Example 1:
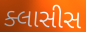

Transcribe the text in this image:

ક્લાસીસ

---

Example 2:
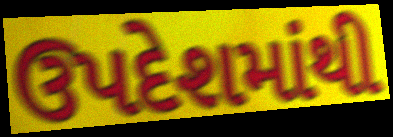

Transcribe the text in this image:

ઉપદેશમાંથી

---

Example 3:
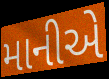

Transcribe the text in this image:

માનીએ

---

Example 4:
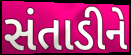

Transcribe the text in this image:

સંતાડીને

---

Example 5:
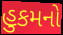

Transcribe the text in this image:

હુકમનો